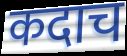
कदाच